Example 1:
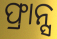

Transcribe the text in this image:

ଫ୍ରାନ୍ସ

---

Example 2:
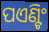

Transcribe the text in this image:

ପଏଣ୍ଟିଂ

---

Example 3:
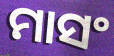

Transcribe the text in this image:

ମାସଂ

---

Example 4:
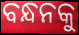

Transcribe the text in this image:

ବନ୍ଧନକୁ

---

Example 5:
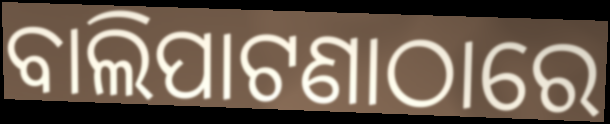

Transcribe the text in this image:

ବାଲିପାଟଣାଠାରେ